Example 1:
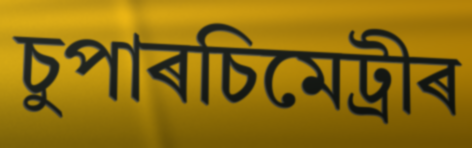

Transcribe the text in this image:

চুপাৰচিমেট্ৰীৰ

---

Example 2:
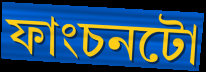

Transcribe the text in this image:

ফাংচনটো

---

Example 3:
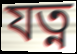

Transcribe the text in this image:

যত্ন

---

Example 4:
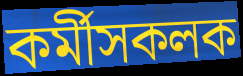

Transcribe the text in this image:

কৰ্মীসকলক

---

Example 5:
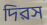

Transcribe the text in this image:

দিৱস